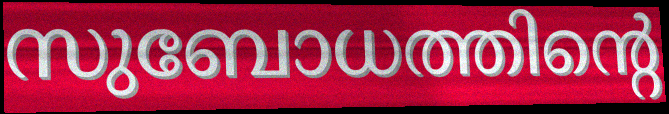
സുബോധത്തിന്റെ